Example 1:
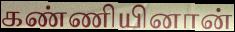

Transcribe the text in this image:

கண்ணியினான்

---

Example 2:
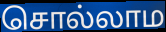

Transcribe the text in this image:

சொல்லாம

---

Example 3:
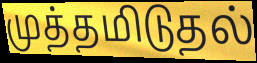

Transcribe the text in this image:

முத்தமிடுதல்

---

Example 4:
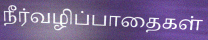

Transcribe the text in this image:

நீர்வழிப்பாதைகள்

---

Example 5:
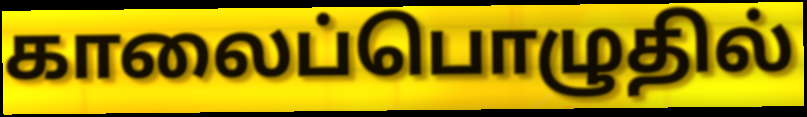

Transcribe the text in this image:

காலைப்பொழுதில்